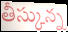
తీస్కున్న